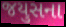
જયુસના